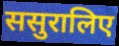
ससुरालिए